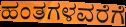
ಹಂತಗಳವರೆಗೆ